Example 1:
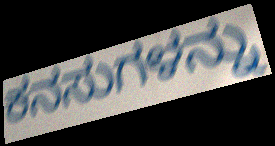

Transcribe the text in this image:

ಕನಸುಗಳನ್ನು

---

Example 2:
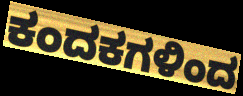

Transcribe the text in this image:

ಕಂದಕಗಳಿಂದ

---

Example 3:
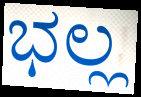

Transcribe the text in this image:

ಭಲ್ಲ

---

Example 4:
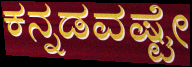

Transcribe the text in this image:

ಕನ್ನಡವಷ್ಟೇ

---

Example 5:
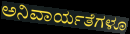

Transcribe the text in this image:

ಅನಿವಾರ್ಯತೆಗಳೂ